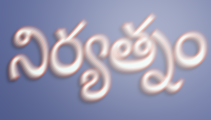
నిర్యత్నం